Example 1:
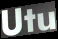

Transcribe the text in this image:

Utu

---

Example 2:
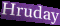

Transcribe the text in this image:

Hruday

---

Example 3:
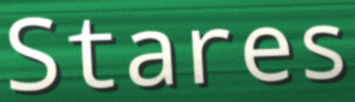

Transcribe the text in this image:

Stares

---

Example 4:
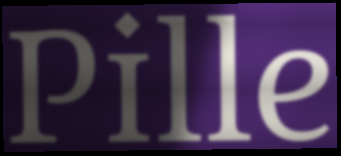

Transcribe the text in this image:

Pille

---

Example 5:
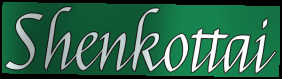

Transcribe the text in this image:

Shenkottai